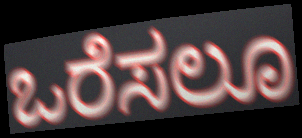
ಒರೆಸಲೂ